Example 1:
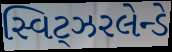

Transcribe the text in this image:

સ્વિટ્ઝરલેન્ડે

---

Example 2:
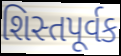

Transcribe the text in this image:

શિસ્તપૂર્વક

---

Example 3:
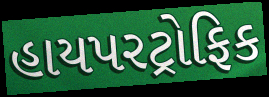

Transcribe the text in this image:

હાયપરટ્રોફિક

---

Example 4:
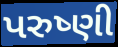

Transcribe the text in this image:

પરુષ્ણી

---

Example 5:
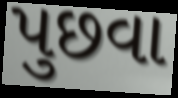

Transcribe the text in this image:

પુછવા